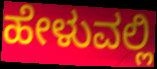
ಹೇಳುವಲ್ಲಿ